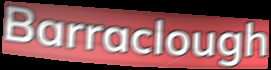
Barraclough